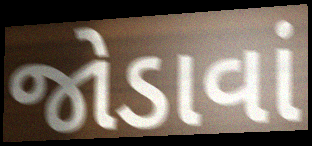
જોડાવાં